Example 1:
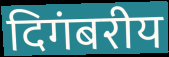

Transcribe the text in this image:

दिगंबरीय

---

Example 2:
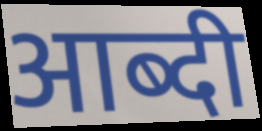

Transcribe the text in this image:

आब्दी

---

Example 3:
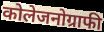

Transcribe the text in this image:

कोलेजनोग्राफी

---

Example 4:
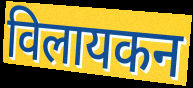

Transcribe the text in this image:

विलायकन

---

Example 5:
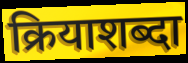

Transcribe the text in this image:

क्रियाशब्दा